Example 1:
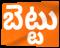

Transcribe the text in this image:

బెట్టు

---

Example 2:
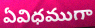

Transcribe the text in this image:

ఏవిధముగా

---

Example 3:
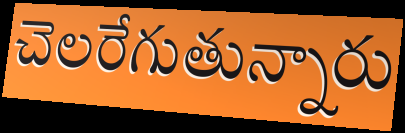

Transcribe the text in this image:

చెలరేగుతున్నారు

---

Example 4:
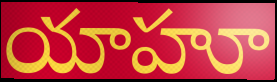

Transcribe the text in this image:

యాహూ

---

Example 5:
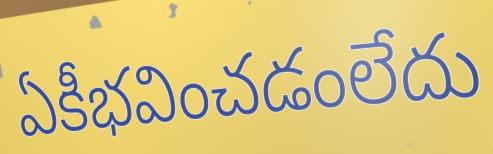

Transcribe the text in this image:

ఏకీభవించడంలేదు